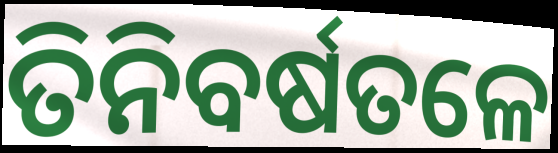
ତିନିବର୍ଷତଳେ